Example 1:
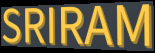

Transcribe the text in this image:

SRIRAM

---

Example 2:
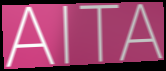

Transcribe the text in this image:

AITA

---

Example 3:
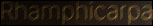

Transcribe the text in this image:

Rhamphicarpa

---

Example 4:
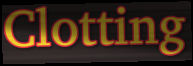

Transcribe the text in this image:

Clotting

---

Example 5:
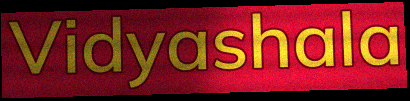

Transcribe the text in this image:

Vidyashala